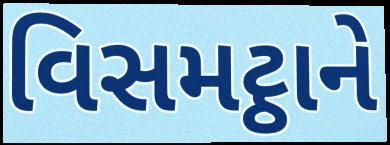
વિસમટ્ઠાને